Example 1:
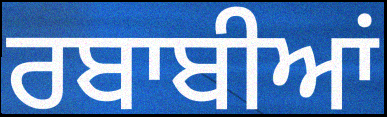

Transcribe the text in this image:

ਰਬਾਬੀਆਂ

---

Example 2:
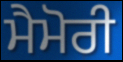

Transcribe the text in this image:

ਮੈਮੋਰੀ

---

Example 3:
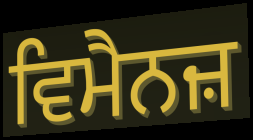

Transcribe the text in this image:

ਵਿਮੈਨਜ਼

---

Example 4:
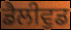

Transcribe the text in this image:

ਡੈਲੀਵੁਡ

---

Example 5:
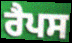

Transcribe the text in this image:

ਰੈਪਸ